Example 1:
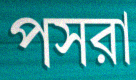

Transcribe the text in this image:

পসরা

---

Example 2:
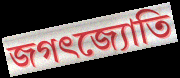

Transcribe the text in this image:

জগৎজ্যোতি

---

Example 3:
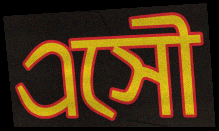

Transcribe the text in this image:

এসৌ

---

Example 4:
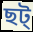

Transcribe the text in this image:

ছট্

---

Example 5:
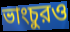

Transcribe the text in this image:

ভাংচুরও